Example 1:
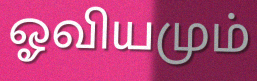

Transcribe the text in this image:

ஓவியமும்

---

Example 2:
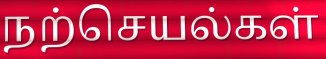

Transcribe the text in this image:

நற்செயல்கள்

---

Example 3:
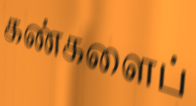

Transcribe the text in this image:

கண்களைப்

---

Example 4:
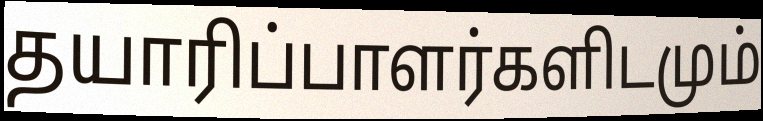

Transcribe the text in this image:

தயாரிப்பாளர்களிடமும்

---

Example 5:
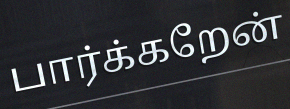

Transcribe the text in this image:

பார்க்கறேன்